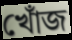
খোঁজ